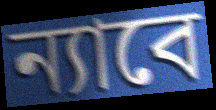
ন্যাবে